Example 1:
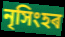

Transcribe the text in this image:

নৃসিংহৰ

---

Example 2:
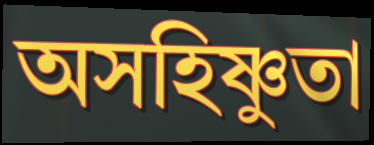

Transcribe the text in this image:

অসহিষ্ণুতা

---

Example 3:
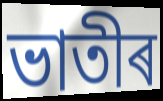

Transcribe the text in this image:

ভাতীৰ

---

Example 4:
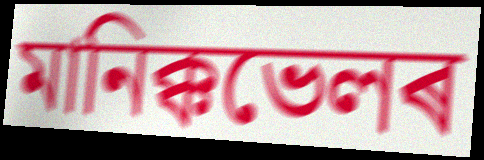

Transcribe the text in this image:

মানিক্কভেলৰ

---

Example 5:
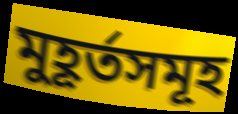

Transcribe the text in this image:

মুহূৰ্তসমূহ